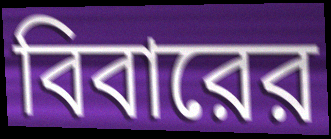
বিবারের